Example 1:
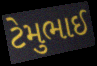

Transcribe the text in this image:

ટેમુભાઈ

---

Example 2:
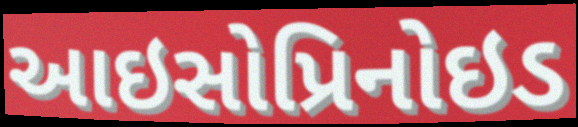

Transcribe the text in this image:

આઇસોપ્રિનોઇડ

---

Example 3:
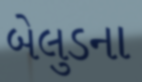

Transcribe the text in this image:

બેલુડના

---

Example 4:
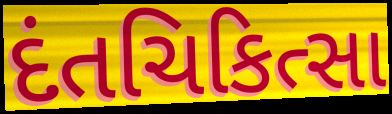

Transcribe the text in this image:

દંતચિકિત્સા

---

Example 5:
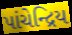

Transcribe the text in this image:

પાંચેન્દ્રિય